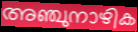
അഞ്ചുനാഴിക